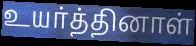
உயர்த்தினாள்